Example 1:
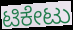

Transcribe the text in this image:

ಟಿಕೇಟು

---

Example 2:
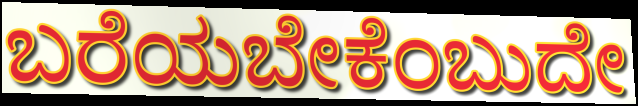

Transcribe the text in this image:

ಬರೆಯಬೇಕೆಂಬುದೇ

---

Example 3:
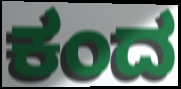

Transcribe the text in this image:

ಕಂದ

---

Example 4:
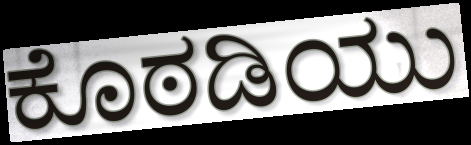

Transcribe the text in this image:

ಕೊಠಡಿಯು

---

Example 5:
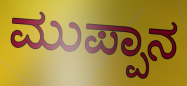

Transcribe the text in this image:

ಮುಪ್ಪಾನ